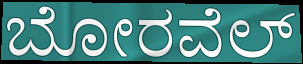
ಬೋರವೆಲ್